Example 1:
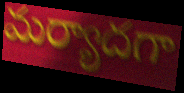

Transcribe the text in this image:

మర్యాదగా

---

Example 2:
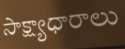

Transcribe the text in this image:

సాక్ష్యాధారాలు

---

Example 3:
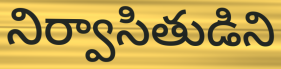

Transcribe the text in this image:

నిర్వాసితుడిని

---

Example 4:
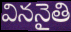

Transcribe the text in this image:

విననైతి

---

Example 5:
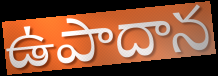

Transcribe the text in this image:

ఉపాదాన